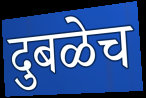
दुबळेच